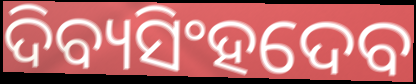
ଦିବ୍ୟସିଂହଦେବ